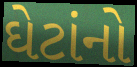
ઘેટાંનો